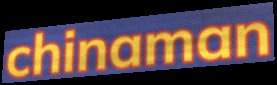
chinaman